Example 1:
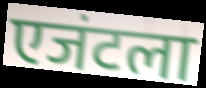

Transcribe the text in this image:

एजंटला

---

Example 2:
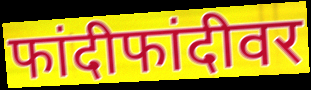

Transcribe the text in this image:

फांदीफांदीवर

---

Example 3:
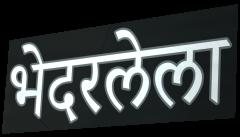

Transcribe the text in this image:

भेदरलेला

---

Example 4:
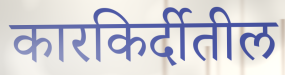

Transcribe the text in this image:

कारकिर्दीतील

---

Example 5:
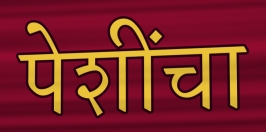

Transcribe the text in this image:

पेशींचा